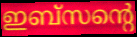
ഇബ്സന്റെ